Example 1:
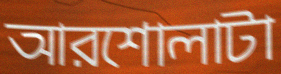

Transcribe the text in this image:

আরশোলাটা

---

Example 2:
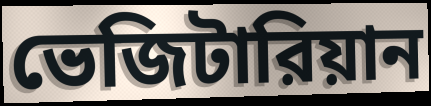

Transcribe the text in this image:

ভেজিটারিয়ান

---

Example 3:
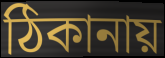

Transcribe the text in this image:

ঠিকানায়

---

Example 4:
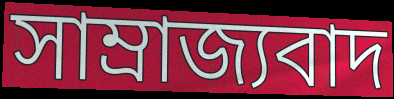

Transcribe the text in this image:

সাম্রাজ্যবাদ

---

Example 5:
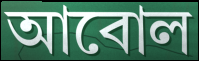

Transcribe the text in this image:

আবোল